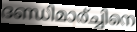
ദണ്ഡിമാര്ച്ചിനെ